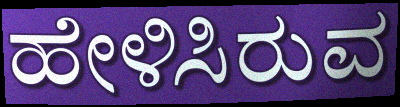
ಹೇಳಿಸಿರುವ